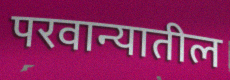
परवान्यातील